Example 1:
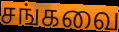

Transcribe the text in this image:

சங்கவை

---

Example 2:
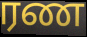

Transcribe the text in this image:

ரண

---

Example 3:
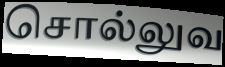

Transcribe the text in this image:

சொல்லுவ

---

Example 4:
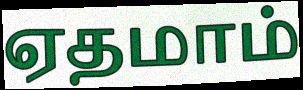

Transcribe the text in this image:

ஏதமாம்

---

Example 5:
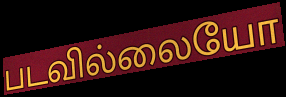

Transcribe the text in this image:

படவில்லையோ